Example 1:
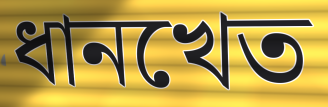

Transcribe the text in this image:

ধানখেত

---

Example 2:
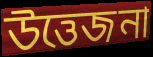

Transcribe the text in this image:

উত্তেজনা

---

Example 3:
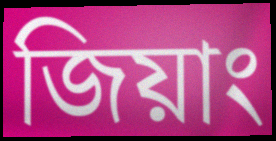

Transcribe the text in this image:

জিয়াং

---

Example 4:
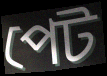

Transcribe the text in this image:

পেট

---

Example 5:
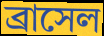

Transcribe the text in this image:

ব্রাসেল